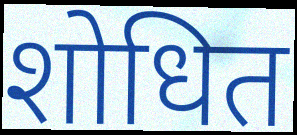
शोधित